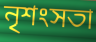
নৃশংসতা